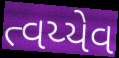
ત્વય્યેવ